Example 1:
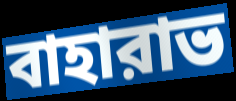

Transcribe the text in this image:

বাহারাভ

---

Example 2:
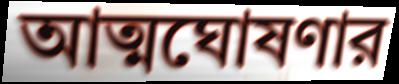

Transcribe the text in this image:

আত্মঘোষণার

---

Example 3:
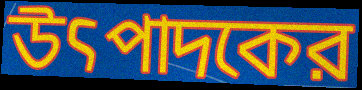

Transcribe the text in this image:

উৎপাদকের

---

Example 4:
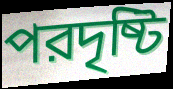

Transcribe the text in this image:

পরদৃষ্টি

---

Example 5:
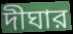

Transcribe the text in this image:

দীঘার